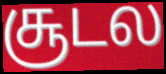
சூடல